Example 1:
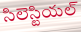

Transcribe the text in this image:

సిలెస్టియల్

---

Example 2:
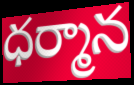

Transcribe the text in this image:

ధర్మాన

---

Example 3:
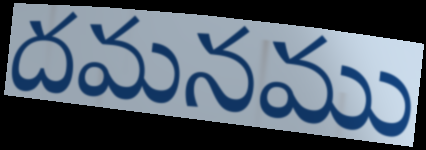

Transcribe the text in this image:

దమనము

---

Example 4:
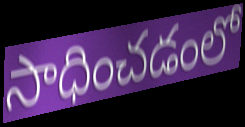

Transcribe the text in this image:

సాధించడంలో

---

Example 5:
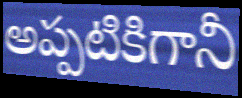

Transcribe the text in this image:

అప్పటికిగానీ